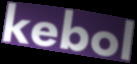
kebol